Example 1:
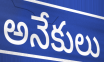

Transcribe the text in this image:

అనేకులు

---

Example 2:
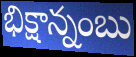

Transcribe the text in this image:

భిక్షాన్నంబు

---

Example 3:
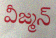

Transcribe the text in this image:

వీజ్మన్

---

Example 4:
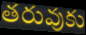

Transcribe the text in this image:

తరువుకు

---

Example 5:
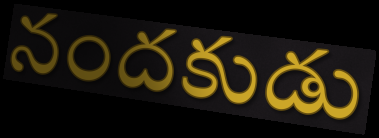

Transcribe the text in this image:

నందకుడు